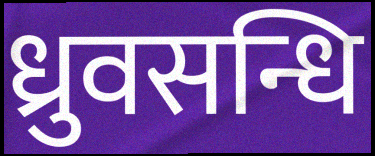
ध्रुवसन्धि